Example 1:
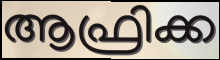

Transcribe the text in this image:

ആഫ്രിക്ക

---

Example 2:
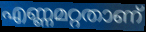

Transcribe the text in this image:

എണ്ണമറ്റതാണ്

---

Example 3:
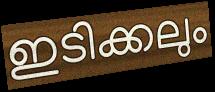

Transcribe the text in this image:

ഇടിക്കലും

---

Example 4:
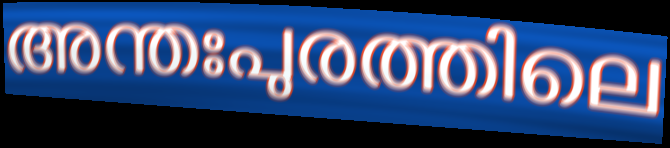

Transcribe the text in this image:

അന്തഃപുരത്തിലെ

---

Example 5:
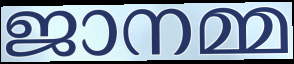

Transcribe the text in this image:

ജാനമ്മ